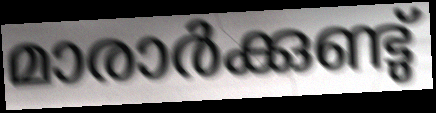
മാരാർക്കുണ്ടു്